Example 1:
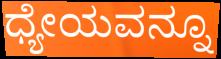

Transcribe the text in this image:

ಧ್ಯೇಯವನ್ನೂ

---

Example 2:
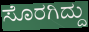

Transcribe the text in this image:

ಸೊರಗಿದ್ದು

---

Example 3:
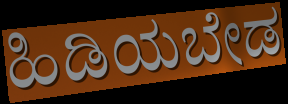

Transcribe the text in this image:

ಹಿಡಿಯಬೇಡ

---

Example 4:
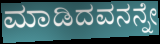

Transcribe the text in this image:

ಮಾಡಿದವನನ್ನೇ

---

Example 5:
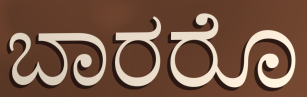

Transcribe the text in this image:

ಬಾರರೊ